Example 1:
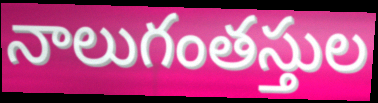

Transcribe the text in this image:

నాలుగంతస్తుల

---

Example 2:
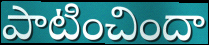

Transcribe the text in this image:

పాటించిందా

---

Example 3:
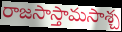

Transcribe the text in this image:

రాజసాస్తామసాశ్చ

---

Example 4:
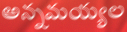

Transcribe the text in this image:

అన్నమయ్యల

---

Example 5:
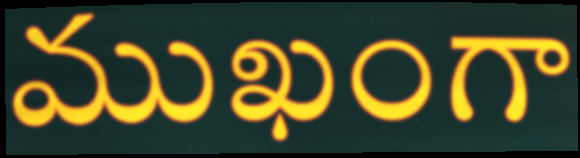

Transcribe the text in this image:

ముఖంగా